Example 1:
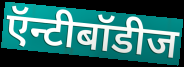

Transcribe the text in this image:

ऍन्टीबॉडीज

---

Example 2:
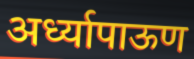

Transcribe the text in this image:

अर्ध्यापाऊण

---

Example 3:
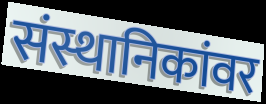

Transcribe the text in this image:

संस्थानिकांवर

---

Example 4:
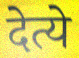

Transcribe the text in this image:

देत्ये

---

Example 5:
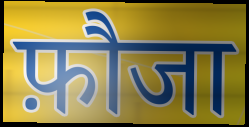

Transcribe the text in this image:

फ़ौजा